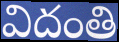
విదంతి